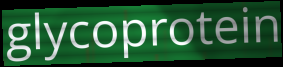
glycoprotein